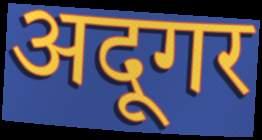
अदूगर